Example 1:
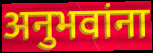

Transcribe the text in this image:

अनुभवांना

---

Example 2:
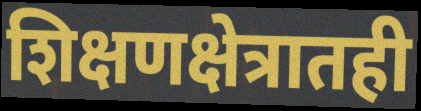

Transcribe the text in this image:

शिक्षणक्षेत्रातही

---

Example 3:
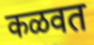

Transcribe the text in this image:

कळवत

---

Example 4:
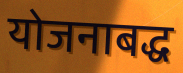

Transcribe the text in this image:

योजनाबद्ध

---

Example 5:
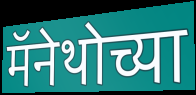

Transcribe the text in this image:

मॅनेथोच्या